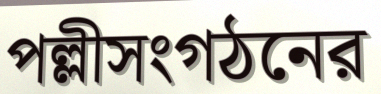
পল্লীসংগঠনের